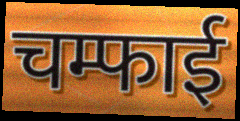
चम्फाई